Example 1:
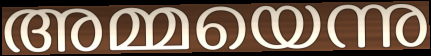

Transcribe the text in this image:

അമ്മയെന്നു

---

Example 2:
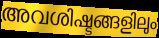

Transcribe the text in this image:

അവശിഷ്ടങ്ങളിലും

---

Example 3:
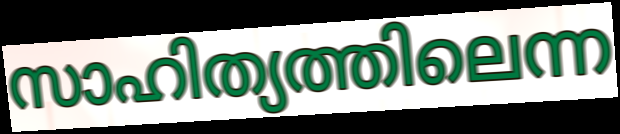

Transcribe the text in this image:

സാഹിത്യത്തിലെന്ന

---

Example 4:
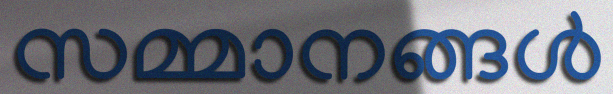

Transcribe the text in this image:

സമ്മാനങ്ങൾ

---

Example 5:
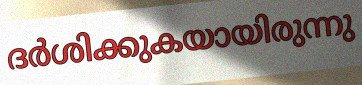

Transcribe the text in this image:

ദർശിക്കുകയായിരുന്നു